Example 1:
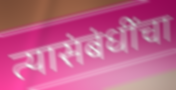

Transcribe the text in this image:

त्यासंबंधींचा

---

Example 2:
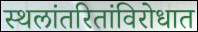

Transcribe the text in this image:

स्थलांतरितांविरोधात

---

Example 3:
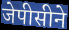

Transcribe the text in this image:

जेपीसीने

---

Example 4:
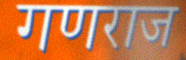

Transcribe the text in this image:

गणराज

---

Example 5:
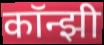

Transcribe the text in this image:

कॉन्झी